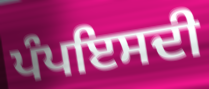
ਪੰਪਇਸਦੀ